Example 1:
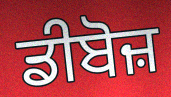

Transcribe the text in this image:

ਡੀਬੋਜ਼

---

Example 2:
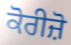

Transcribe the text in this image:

ਕੋਰੀਜ਼ੋ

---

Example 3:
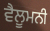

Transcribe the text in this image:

ਵੈਲੂਮਨੀ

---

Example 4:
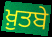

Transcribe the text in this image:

ਖ਼ੁਤਬੇ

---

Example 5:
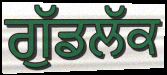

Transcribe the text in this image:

ਗੁੱਡਲੱਕ